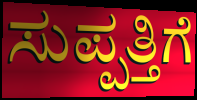
ಸುಪ್ಪತ್ತಿಗೆ